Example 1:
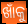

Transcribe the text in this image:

ଖାଁକୁ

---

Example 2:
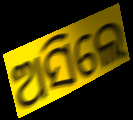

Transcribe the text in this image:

ଅସିଲେ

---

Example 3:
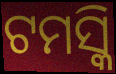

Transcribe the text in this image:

ଟମସ୍କି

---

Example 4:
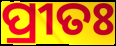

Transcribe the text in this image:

ପ୍ରୀତଃ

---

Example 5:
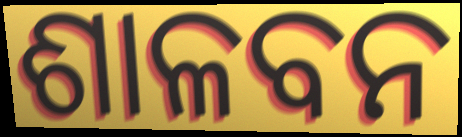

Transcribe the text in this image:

ଶାଳବନ